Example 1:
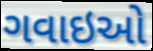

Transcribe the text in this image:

ગવાઇઓ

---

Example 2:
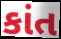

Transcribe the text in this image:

કાંત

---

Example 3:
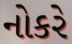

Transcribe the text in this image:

નોકરે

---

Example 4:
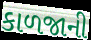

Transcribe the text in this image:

કાળજાની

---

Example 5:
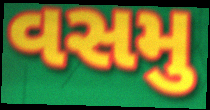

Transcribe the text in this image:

વસમુ